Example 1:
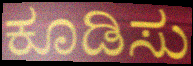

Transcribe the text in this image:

ಕೂಡಿಸು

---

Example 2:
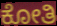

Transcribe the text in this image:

ಕೋತಿ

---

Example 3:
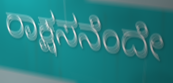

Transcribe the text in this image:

ರಾಕ್ಷಸನೆಂದೇ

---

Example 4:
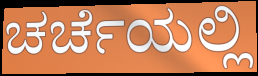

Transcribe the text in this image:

ಚರ್ಚೆಯಲ್ಲಿ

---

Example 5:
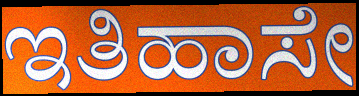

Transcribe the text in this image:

ಇತಿಹಾಸೇ